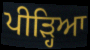
ਪੀੜ੍ਹਿਆ